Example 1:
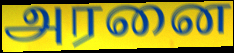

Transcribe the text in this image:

அரனை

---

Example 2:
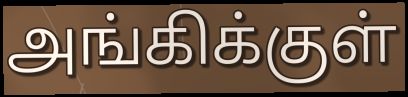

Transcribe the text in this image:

அங்கிக்குள்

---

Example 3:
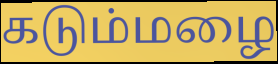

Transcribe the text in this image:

கடும்மழை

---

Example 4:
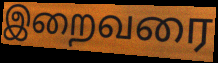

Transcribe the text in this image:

இறைவரை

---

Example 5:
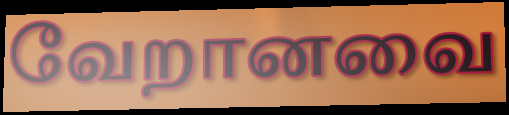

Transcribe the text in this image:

வேறானவை